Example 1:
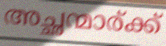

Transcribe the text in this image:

അച്ഛന്മാര്ക്ക്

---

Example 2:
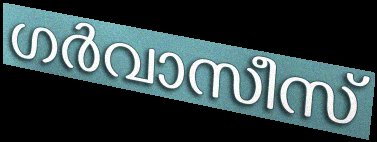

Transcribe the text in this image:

ഗർവാസീസ്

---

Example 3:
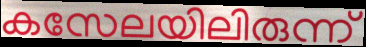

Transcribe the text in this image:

കസേലയിലിരുന്ന്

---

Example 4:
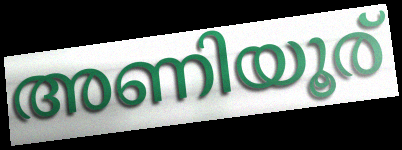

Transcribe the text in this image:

അണിയൂര്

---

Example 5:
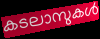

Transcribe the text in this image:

കടലാസുകൾ